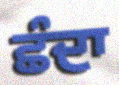
ਛੰਦਾ